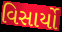
વિસાર્યો